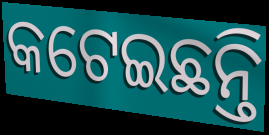
କଟେଇଛନ୍ତି